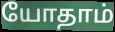
யோதாம்